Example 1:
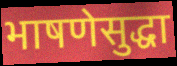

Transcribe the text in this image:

भाषणेसुद्धा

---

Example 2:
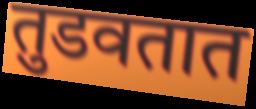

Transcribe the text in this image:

तुडवतात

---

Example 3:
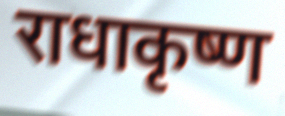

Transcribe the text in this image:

राधाकृष्ण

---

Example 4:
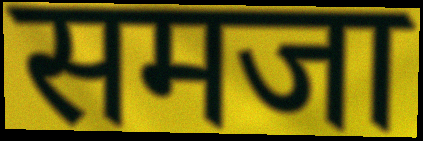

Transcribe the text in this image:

समजा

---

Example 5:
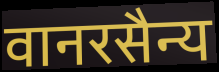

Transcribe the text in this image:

वानरसैन्य